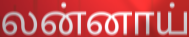
லன்னாய்